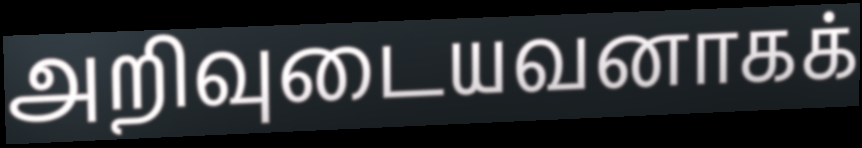
அறிவுடையவனாகக்